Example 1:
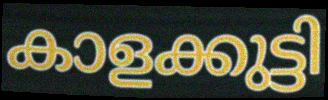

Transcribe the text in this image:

കാളക്കുട്ടി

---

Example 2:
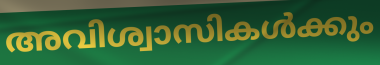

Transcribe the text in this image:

അവിശ്വാസികൾക്കും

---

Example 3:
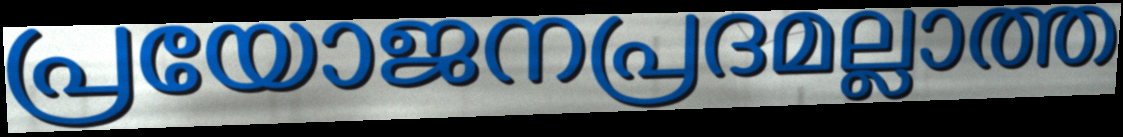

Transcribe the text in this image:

പ്രയോജനപ്രദമല്ലാത്ത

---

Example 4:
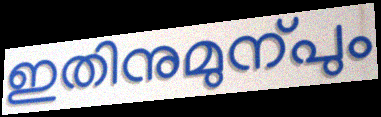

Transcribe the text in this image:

ഇതിനുമുന്പും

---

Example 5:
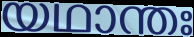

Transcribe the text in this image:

യഥാന്തഃ